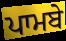
ਪਾਮਬੇ